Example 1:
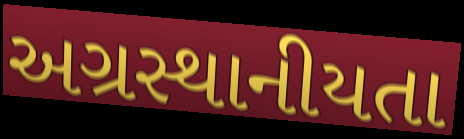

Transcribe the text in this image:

અગ્રસ્થાનીયતા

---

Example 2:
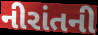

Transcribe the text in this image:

નીરાંતની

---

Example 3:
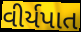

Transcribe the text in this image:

વીર્યપાત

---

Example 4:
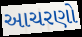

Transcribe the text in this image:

આચરણો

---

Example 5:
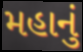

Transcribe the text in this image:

મહાનું